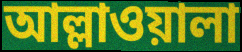
আল্লাওয়ালা